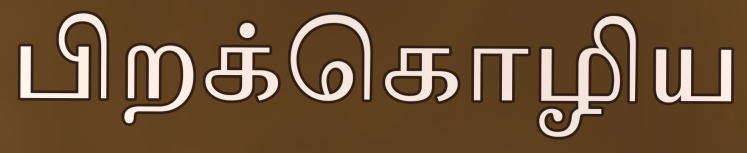
பிறக்கொழிய